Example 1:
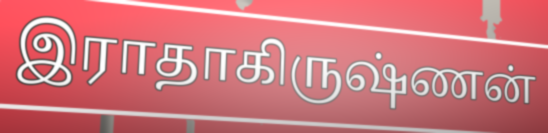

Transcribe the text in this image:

இராதாகிருஷ்ணன்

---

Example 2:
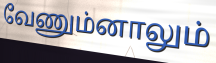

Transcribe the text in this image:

வேணும்னாலும்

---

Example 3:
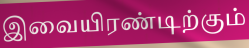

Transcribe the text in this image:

இவையிரண்டிற்கும்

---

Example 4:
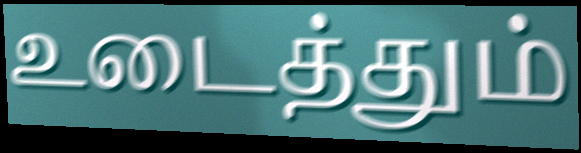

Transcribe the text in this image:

உடைத்தும்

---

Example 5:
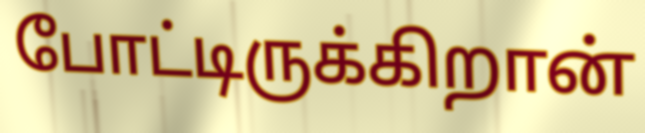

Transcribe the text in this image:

போட்டிருக்கிறான்